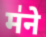
म॑ने